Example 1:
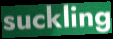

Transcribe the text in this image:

suckling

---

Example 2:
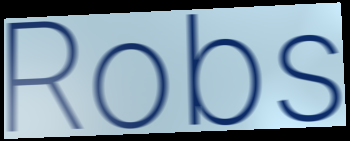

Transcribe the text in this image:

Robs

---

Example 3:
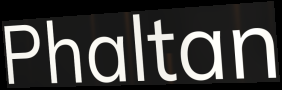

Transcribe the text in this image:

Phaltan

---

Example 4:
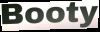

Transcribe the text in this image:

Booty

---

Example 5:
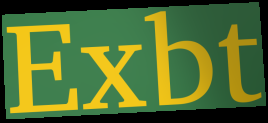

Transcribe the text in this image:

Exbt